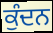
ਕੁੰਦਨ